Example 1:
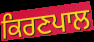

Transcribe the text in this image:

ਕਿਰਣਪਾਲ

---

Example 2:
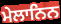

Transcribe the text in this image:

ਮੇਲਾਨਿਨ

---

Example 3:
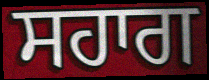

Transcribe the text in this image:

ਸਹਾਗ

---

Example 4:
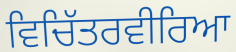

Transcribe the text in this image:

ਵਿਚਿੱਤਰਵੀਰਿਆ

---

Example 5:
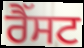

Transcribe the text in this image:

ਰੈੱਸਟ